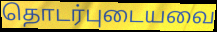
தொடர்புடையவை